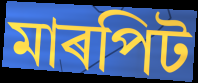
মাৰপিট